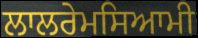
ਲਾਲਰੇਮਸਿਆਮੀ